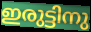
ഇരുട്ടിനു